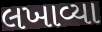
લખાવ્યા